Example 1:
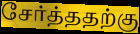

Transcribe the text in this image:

சேர்த்ததற்கு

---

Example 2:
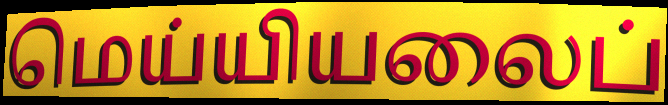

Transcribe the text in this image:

மெய்யியலைப்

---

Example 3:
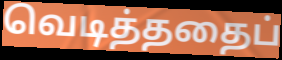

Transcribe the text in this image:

வெடித்ததைப்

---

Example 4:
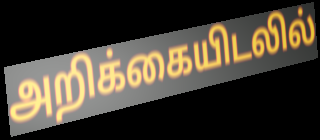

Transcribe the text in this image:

அறிக்கையிடலில்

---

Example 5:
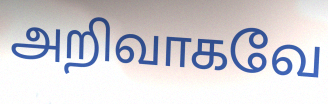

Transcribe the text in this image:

அறிவாகவே